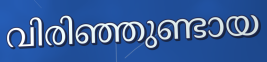
വിരിഞ്ഞുണ്ടായ